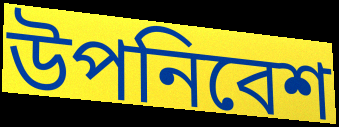
উপনিবেশ